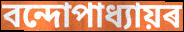
বন্দোপাধ্যায়ৰ